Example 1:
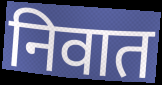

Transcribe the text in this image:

निवात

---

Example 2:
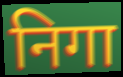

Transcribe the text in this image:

निगा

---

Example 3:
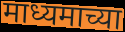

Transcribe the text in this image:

माध्यमाच्या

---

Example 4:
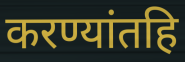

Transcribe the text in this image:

करण्यांतहि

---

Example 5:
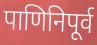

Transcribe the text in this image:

पाणिनिपूर्व